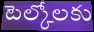
టెల్కోలకు